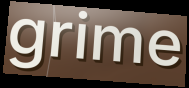
grime